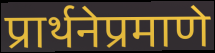
प्रार्थनेप्रमाणे